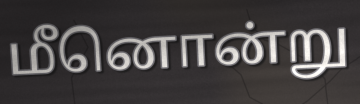
மீனொன்று